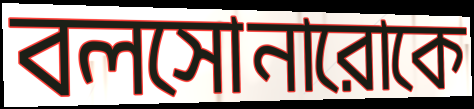
বলসোনারোকে